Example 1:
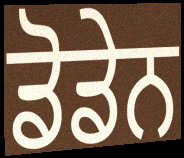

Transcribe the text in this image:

ਡੋਡੇਨ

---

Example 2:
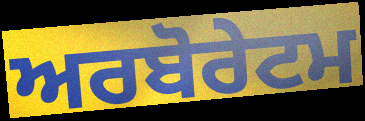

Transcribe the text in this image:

ਅਰਬੋਰੇਟਮ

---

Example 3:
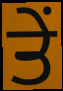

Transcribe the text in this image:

ਤੇੰ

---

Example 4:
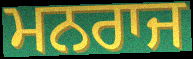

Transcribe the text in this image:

ਮਨਰਾਜ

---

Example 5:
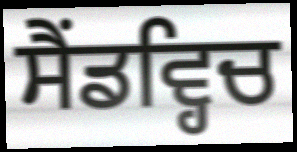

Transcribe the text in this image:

ਸੈਂਡਵ੍ਹਿਚ